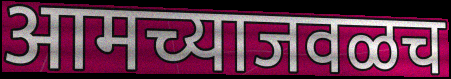
आमच्याजवळच